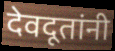
देवदूतांनी